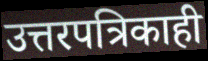
उत्तरपत्रिकाही